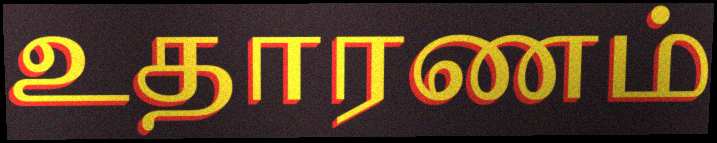
உதாரணம்